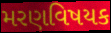
મરણવિષયક